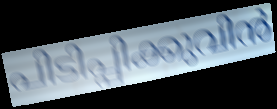
പിടിപ്പിക്കുവിൻ